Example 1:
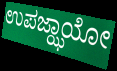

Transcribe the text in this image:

ಉಪಜ್ಝಾಯೋ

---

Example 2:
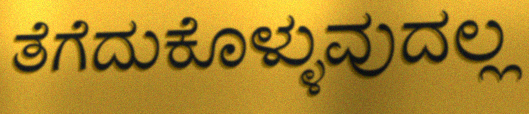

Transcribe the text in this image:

ತೆಗೆದುಕೊಳ್ಳುವುದಲ್ಲ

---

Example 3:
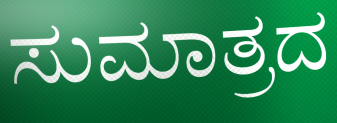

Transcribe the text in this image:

ಸುಮಾತ್ರದ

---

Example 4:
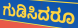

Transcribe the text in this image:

ಗುಡಿಸಿದರೂ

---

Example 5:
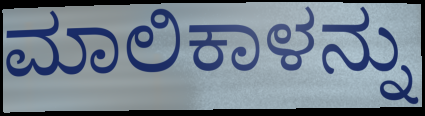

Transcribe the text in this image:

ಮಾಲಿಕಾಳನ್ನು